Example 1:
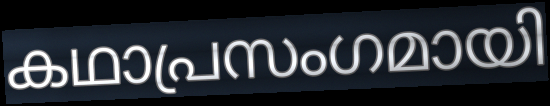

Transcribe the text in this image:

കഥാപ്രസംഗമായി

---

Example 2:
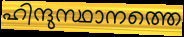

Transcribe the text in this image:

ഹിന്ദുസ്ഥാനത്തെ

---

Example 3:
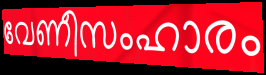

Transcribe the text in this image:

വേണീസംഹാരം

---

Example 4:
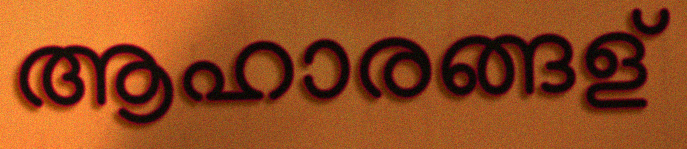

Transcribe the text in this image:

ആഹാരങ്ങള്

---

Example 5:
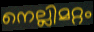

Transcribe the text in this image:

നെല്ലിമറ്റം